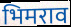
भिमराव